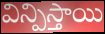
విన్పిస్తాయి